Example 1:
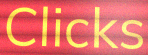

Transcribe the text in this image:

Clicks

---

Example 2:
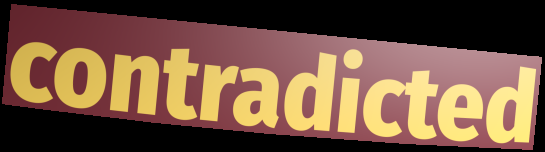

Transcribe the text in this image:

contradicted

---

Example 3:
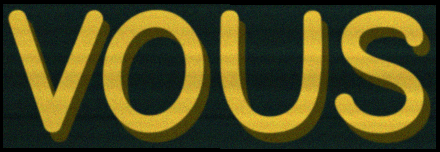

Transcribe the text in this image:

VOUS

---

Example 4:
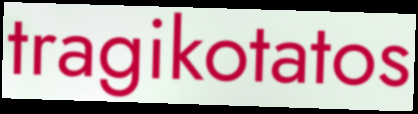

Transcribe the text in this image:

tragikotatos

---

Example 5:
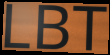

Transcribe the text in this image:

LBT